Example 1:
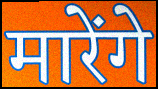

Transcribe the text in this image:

मारेंगे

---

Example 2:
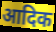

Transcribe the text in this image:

आदिक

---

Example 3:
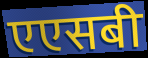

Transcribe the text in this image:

एएसबी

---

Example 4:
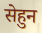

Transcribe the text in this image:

सेहुन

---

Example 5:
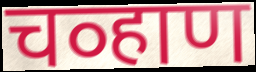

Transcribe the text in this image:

चव्हाण